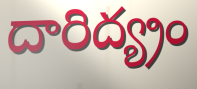
దారిద్య్రం